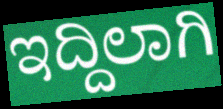
ಇದ್ದಿಲಾಗಿ